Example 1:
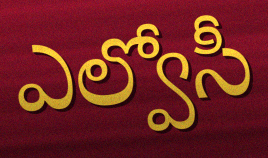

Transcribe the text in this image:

ఎల్వోసీ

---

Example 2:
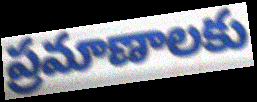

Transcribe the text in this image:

ప్రమాణాలకు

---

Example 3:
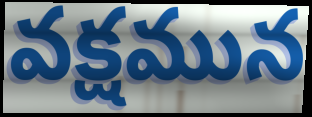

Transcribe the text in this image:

వక్షమున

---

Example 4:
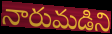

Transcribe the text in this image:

నారుమడిని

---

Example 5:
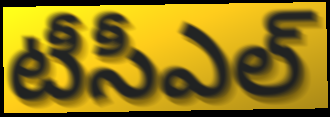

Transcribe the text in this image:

టీసీఎల్